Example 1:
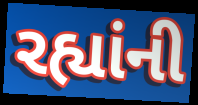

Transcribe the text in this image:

રહ્યાંની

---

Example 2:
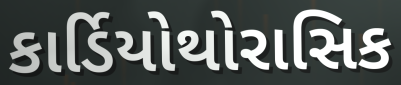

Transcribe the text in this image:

કાર્ડિયોથોરાસિક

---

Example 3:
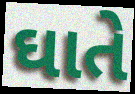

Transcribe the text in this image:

ઘાતે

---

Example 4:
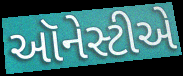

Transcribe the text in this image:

ઑનેસ્ટીએ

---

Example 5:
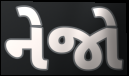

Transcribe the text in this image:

નેજો